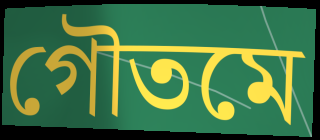
গৌতমে